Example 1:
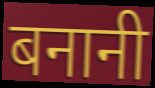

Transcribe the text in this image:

बनानी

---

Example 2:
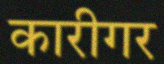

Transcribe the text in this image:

कारीगर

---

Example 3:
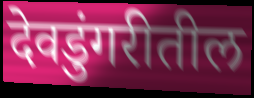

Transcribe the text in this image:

देवडुंगरीतील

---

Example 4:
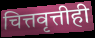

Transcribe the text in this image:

चित्तवृत्तीही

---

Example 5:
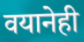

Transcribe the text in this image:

वयानेही